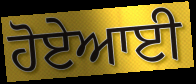
ਹੋਏਆਈ